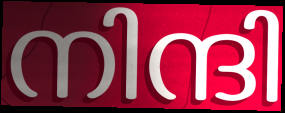
നിന്ദി